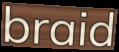
braid